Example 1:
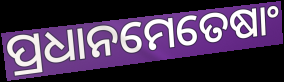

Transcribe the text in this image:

ପ୍ରଧାନମେତେଷାଂ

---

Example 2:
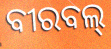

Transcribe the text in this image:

ବୀରବଲ୍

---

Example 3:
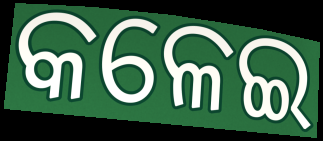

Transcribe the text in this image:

କଳେଇ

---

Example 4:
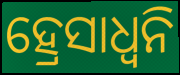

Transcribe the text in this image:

ହ୍ରେସାଧ୍ୱନି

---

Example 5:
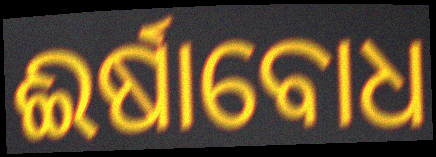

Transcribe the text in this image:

ଈର୍ଷାବୋଧ